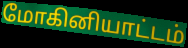
மோகினியாட்டம்